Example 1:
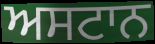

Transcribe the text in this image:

ਅਸਟਾਨ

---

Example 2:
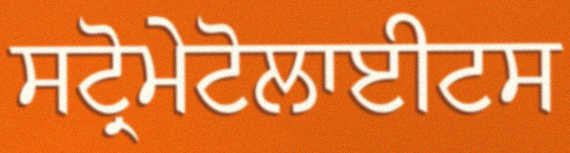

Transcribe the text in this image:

ਸਟ੍ਰੋਮੇਟੋਲਾਈਟਸ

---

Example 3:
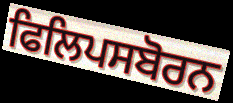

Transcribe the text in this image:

ਫਿਲਿਪਸਬੋਰਨ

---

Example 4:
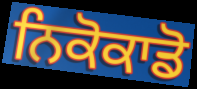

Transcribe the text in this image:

ਨਿਕੋਕਾਡੋ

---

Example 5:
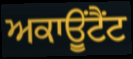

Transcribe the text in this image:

ਅਕਾਉੂਂਟੈਂਟ